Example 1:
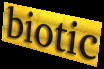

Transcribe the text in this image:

biotic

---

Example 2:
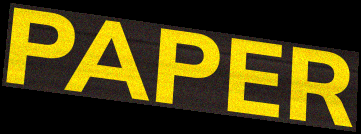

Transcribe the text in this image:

PAPER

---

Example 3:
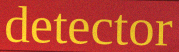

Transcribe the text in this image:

detector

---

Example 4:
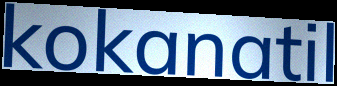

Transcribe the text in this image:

kokanatil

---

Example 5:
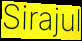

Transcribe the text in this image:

Sirajul